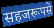
सहजरूपसे